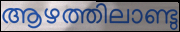
ആഴത്തിലാണ്ടു